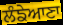
ਲੰਙੇਆਣਾ